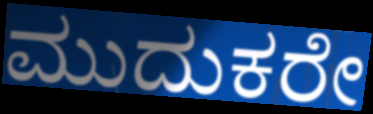
ಮುದುಕರೇ